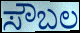
ಸೌಬಲ